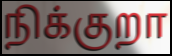
நிக்குறா